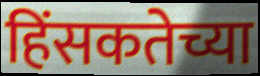
हिंसकतेच्या